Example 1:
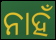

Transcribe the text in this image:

ନାହଁ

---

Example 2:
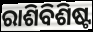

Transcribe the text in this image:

ରାଶିବିଶିଷ୍ଟ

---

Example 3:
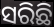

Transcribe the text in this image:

ସରିଛି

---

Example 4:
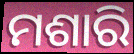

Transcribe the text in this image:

ମଶାରି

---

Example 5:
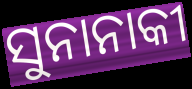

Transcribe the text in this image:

ସୁନାନାକୀ